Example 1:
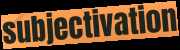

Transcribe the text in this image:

subjectivation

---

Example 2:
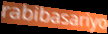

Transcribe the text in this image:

rabibasariyo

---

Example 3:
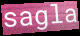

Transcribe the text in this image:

sagla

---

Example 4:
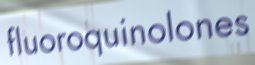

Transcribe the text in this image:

fluoroquinolones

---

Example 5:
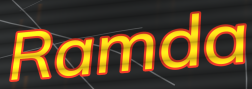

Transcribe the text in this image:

Ramda